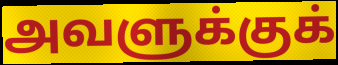
அவளுக்குக்